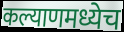
कल्याणमध्येच